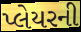
પ્લેયરની